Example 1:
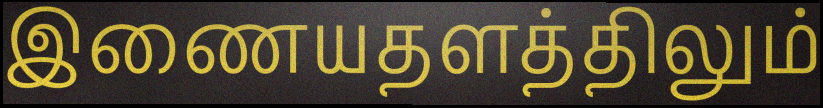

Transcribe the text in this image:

இணையதளத்திலும்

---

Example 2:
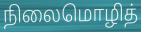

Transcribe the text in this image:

நிலைமொழித்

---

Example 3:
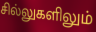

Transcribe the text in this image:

சில்லுகளிலும்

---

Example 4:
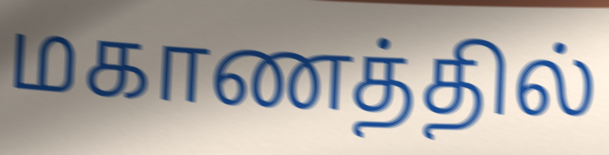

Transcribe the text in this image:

மகாணத்தில்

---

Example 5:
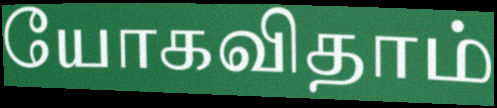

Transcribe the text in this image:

யோகவிதாம்